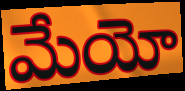
మేయో